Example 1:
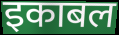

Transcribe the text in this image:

इकाबल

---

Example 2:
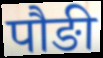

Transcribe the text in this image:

पौङी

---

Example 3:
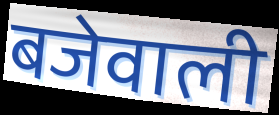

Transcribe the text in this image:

बजेवाली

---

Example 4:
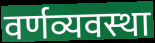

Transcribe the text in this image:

वर्णव्यवस्था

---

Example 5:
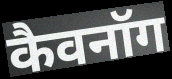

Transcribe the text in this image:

कैवनॉग